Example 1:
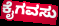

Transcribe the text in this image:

ಕೈಗವಸು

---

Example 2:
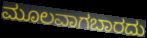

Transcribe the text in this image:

ಮೂಲವಾಗಬಾರದು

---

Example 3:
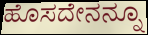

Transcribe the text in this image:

ಹೊಸದೇನನ್ನೂ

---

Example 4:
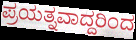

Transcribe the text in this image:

ಪ್ರಯತ್ನವಾದ್ದರಿಂದ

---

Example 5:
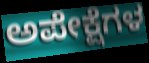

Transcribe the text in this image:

ಅಪೇಕ್ಷೆಗಳ